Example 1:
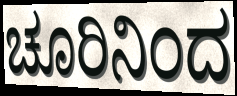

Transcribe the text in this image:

ಚೂರಿನಿಂದ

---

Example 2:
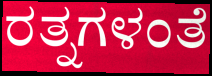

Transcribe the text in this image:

ರತ್ನಗಳಂತೆ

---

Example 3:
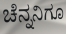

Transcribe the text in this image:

ಚೆನ್ನನಿಗೂ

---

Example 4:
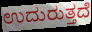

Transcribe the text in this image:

ಉದುರುತ್ತದೆ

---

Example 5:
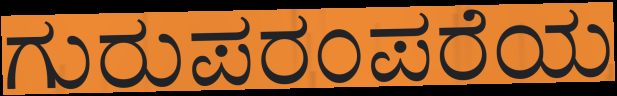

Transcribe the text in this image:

ಗುರುಪರಂಪರೆಯ